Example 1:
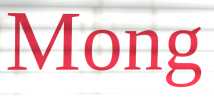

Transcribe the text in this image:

Mong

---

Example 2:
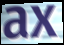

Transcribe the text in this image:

ax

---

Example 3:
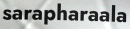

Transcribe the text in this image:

sarapharaala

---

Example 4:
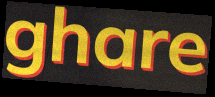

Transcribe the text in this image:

ghare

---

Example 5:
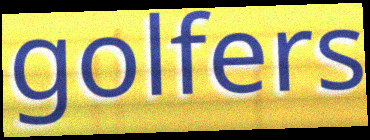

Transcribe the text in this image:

golfers